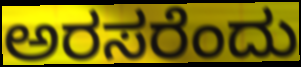
ಅರಸರೆಂದು